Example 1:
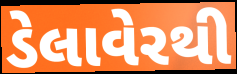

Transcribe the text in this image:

ડેલાવેરથી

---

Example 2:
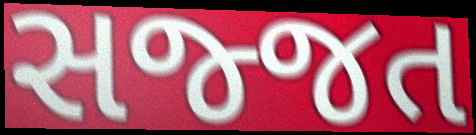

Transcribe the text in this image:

સજ્જત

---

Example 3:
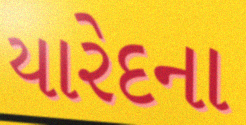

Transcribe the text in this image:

યારેદના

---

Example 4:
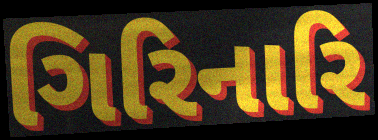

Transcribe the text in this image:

ગિરિનારિ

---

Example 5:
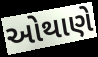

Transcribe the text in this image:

ઓથાણે